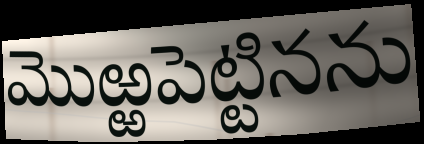
మొఱ్ఱపెట్టినను